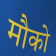
मौको